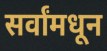
सर्वांमधून